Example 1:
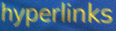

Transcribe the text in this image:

hyperlinks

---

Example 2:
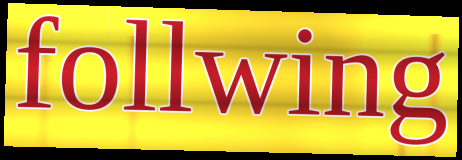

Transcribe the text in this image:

follwing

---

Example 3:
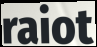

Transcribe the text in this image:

raiot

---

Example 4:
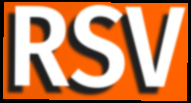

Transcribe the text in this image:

RSV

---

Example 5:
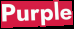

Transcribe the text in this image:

Purple